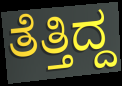
ತೆತ್ತಿದ್ದ